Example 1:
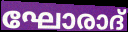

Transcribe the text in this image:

ഘോരാദ്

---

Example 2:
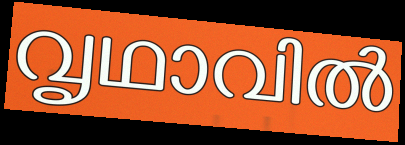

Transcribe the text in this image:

വൃഥാവിൽ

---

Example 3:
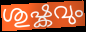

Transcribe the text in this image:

ശുഷ്കവും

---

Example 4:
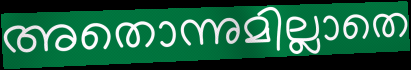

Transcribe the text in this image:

അതൊന്നുമില്ലാതെ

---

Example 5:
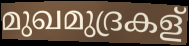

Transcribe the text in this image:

മുഖമുദ്രകള്